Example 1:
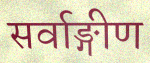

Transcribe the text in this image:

सर्वाङ्गीण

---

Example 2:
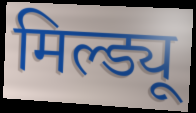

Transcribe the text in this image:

मिल्ड्यू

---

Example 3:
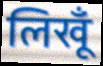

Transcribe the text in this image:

लिखूंँ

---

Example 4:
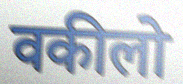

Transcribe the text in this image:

वकीलो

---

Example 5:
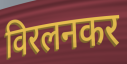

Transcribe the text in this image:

विरलनकर